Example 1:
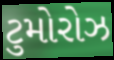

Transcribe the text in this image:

ટુમોરોઝ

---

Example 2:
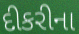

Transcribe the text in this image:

દીકરીના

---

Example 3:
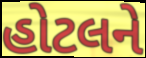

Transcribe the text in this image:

હોટલને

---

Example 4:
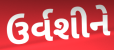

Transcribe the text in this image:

ઉર્વશીને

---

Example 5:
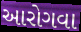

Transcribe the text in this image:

આરોગવા